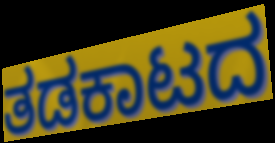
ತಡಕಾಟದ